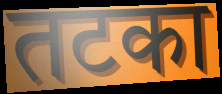
तटका